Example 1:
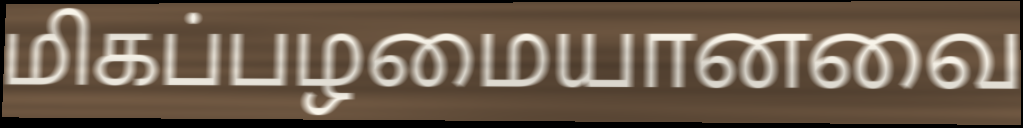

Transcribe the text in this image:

மிகப்பழமையானவை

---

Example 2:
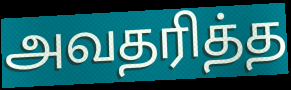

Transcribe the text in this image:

அவதரித்த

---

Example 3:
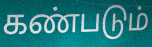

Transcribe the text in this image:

கண்படும்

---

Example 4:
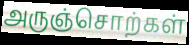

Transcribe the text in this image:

அருஞ்சொற்கள்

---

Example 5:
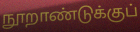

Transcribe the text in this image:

நூறாண்டுக்குப்